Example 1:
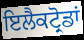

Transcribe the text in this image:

ਇਲੈਕਟ੍ਰੋਡਾਂ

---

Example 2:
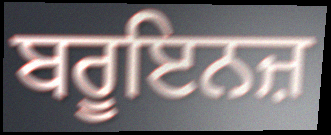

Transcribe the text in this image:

ਬਰੂਇਨਜ਼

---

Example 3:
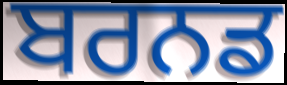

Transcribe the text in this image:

ਬਰਨਡ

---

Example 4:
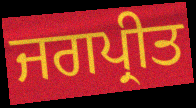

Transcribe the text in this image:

ਜਗਪ੍ਰੀਤ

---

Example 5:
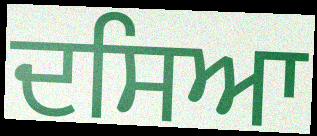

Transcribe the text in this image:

ਦਸਿਆ